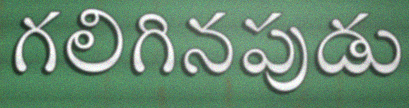
గలిగినపుడు